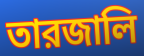
তারজালি